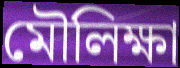
মৌলিক্ষা